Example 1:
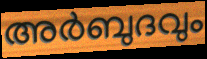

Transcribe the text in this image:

അർബുദവും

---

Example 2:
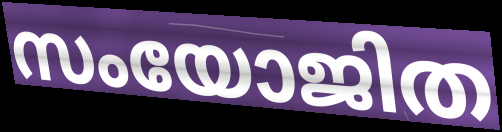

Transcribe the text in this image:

സംയോജിത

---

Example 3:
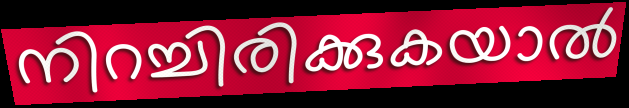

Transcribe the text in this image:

നിറച്ചിരിക്കുകയാൽ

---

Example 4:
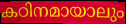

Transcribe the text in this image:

കഠിനമായാലും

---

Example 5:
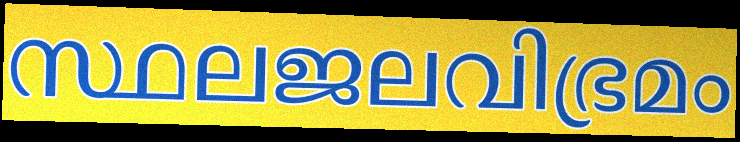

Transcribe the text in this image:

സ്ഥലജലവിഭ്രമം